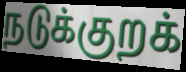
நடுக்குறக்